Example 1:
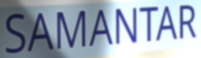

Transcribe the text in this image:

SAMANTAR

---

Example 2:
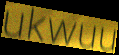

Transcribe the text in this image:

ukwuu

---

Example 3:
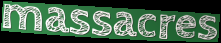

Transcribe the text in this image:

massacres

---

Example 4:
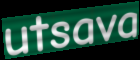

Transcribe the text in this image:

utsava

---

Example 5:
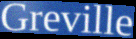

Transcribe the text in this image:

Greville